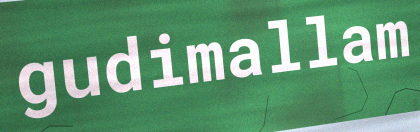
gudimallam